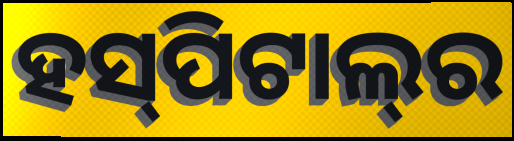
ହସ୍‍ପିଟାଲ୍‍ର